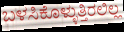
ಬಳಸಿಕೊಳ್ಳುತ್ತಿರಲಿಲ್ಲ